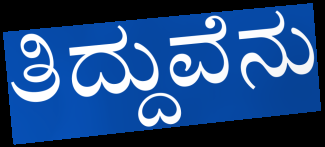
ತಿದ್ದುವೆನು